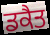
ਡਕੈਤ